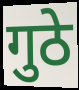
गुठे